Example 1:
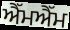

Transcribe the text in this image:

ਐੱਮਐੱਮ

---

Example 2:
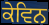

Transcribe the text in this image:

ਕੇਵਿਨ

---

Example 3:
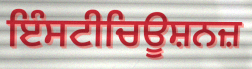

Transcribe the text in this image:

ਇੰਸਟੀਚਿਊਸ਼ਨਜ਼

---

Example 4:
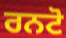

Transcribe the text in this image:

ਰਨਟੋ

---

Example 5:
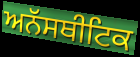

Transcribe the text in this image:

ਅਨੱਸਥੀਟਿਕ